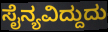
ಸೈನ್ಯವಿದ್ದುದು